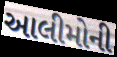
આલીમોની